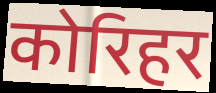
कोरिहर